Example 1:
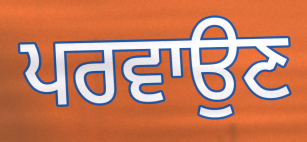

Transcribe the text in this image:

ਪਰਵਾਉਣ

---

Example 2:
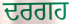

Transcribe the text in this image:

ਦਰਗਹ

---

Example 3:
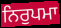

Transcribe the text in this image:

ਨਿਰੁਪਮਾ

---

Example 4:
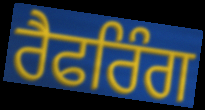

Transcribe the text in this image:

ਰੈਫਰਿੰਗ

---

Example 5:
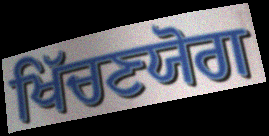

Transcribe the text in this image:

ਖਿੱਚਣਯੋਗ